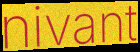
nivant